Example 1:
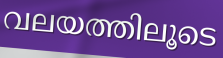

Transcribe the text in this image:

വലയത്തിലൂടെ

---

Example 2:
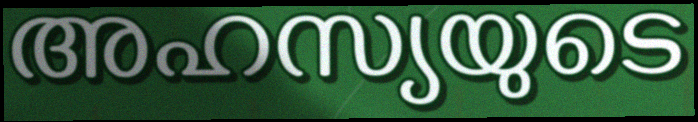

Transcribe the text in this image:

അഹസ്യയുടെ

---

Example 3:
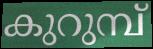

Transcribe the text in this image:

കുറുമ്പ്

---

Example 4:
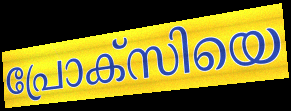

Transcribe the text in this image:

പ്രോക്സിയെ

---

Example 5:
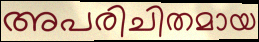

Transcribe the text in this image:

അപരിചിതമായ